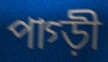
পাগ্ড়ী